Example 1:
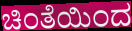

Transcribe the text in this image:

ಚಿಂತೆಯಿಂದ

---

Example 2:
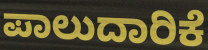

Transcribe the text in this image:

ಪಾಲುದಾರಿಕೆ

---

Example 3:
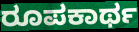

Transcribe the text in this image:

ರೂಪಕಾರ್ಥ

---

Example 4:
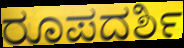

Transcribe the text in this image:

ರೂಪದರ್ಶಿ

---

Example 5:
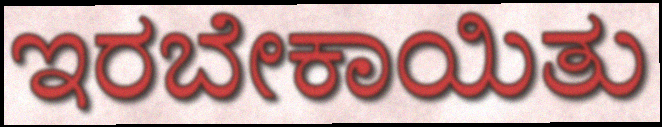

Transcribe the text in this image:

ಇರಬೇಕಾಯಿತು